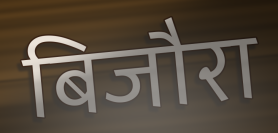
बिजौरा